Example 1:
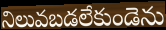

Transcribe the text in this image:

నిలువబడలేకుండెను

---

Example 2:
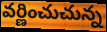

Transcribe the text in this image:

వర్ణించుచున్న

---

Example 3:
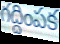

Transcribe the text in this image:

గద్దింపక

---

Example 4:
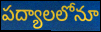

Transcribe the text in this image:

పద్యాలలోనూ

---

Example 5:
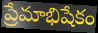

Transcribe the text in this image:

ప్రేమాభిషేకం